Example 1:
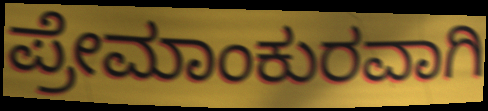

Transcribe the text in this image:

ಪ್ರೇಮಾಂಕುರವಾಗಿ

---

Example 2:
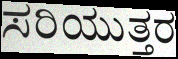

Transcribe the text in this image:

ಸರಿಯುತ್ತರ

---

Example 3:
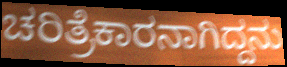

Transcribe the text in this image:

ಚರಿತ್ರೆಕಾರನಾಗಿದ್ದನು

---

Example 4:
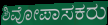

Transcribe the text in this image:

ಶಿವೋಪಾಸಕರು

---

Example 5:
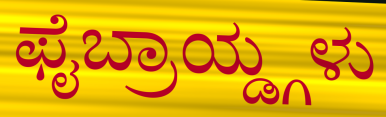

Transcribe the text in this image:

ಫೈಬ್ರಾಯ್ಡ್ಗಳು